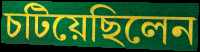
চটিয়েছিলেন